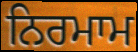
ਨਿਰਮਾਮ